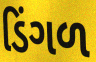
ડિંગળ